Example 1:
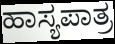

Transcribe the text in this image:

ಹಾಸ್ಯಪಾತ್ರ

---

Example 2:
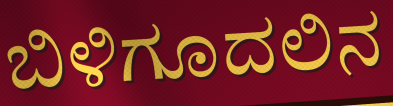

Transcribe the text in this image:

ಬಿಳಿಗೂದಲಿನ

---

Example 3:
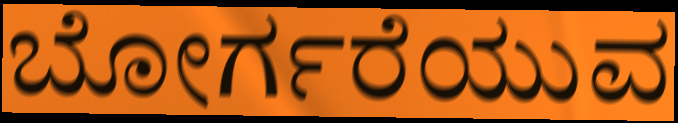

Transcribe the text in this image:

ಬೋರ್ಗರೆಯುವ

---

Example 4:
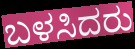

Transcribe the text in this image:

ಬಳಸಿದರು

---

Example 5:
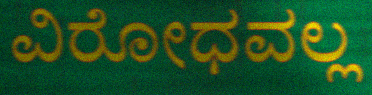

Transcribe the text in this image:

ವಿರೋಧವಲ್ಲ